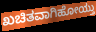
ಖಚಿತವಾಗಿಹೋಯ್ತು